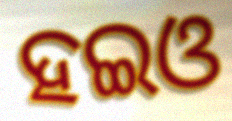
ହଇଓ